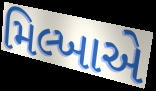
મિલ્ખાએ